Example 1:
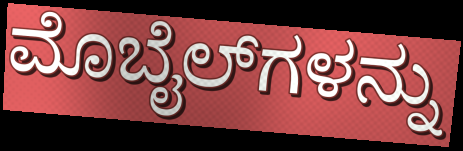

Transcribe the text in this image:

ಮೊಬೈಲ್‌ಗಳನ್ನು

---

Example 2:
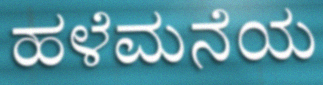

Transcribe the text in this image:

ಹಳೆಮನೆಯ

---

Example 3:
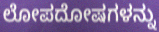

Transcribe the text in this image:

ಲೋಪದೋಷಗಳನ್ನು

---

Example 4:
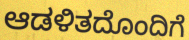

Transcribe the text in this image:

ಆಡಳಿತದೊಂದಿಗೆ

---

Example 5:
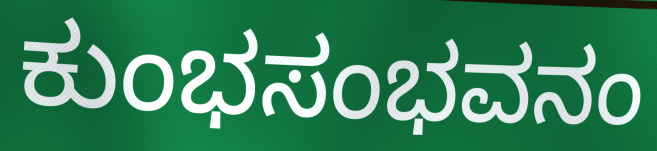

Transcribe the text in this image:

ಕುಂಭಸಂಭವನಂ